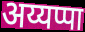
अय्यप्पा